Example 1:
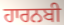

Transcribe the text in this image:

ਹਾਰਨਬੀ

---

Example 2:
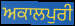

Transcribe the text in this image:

ਅਕਾਲਪੁਰੀ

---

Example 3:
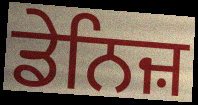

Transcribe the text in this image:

ਡੇਨਿਜ਼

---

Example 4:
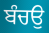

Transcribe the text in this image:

ਬੰਚਉ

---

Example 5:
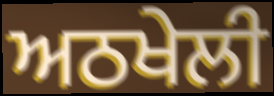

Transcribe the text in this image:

ਅਠਖੇਲੀ